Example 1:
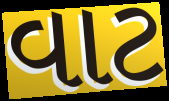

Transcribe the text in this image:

વાટ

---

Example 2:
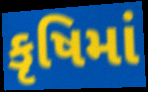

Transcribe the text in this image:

કૃષિમાં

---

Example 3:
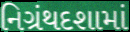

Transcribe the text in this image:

નિગ્રંથદશામાં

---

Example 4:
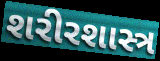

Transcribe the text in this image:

શરીરશાસ્ત્ર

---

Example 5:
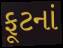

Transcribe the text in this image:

ફૂટનાં